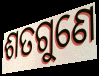
ଶତଗୁଣେ